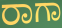
ರಾಗಾ